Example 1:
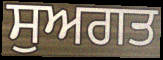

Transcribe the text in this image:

ਸੁਅਗਤ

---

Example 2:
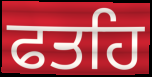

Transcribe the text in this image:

ਫਤਹਿ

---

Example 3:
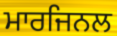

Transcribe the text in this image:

ਮਾਰਜਿਨਲ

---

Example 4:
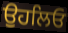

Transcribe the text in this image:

ਉਹਲਿਓ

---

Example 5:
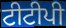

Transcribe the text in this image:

ਟੀਟੀਪੀ